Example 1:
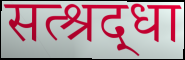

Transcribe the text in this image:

सत्श्रद्धा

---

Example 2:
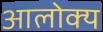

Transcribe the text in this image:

आलोक्य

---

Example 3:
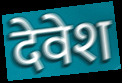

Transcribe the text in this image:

देवेश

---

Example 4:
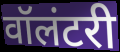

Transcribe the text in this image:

वॉलंटरी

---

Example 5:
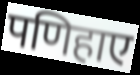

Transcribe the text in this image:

पणिहाए